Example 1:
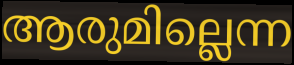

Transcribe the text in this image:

ആരുമില്ലെന്ന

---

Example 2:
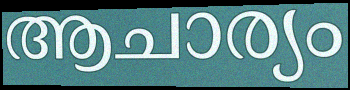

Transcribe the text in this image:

ആചാര്യം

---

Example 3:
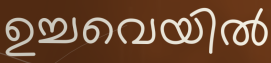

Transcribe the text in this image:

ഉച്ചവെയിൽ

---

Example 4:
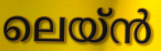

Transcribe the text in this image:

ലെയ്ൻ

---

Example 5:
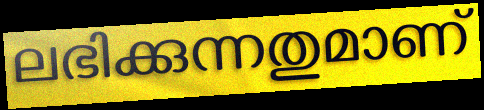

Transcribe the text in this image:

ലഭിക്കുന്നതുമാണ്